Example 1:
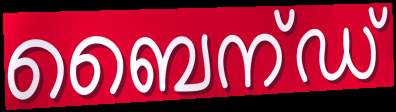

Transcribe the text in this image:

ബൈന്ഡ്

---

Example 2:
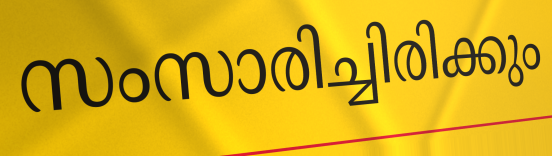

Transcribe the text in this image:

സംസാരിച്ചിരിക്കും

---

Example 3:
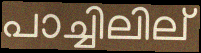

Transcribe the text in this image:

പാച്ചിലില്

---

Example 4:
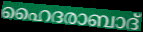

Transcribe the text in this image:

ഹൈദരാബാദ്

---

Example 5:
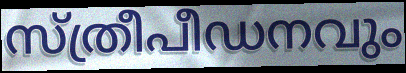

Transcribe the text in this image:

സ്ത്രീപീഡനവും